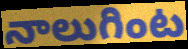
నాలుగింట